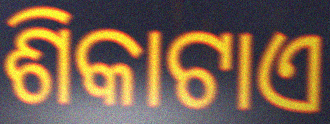
ଶିକାଟାଏ